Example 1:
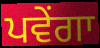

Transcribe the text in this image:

ਪਵੇਂਗਾ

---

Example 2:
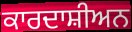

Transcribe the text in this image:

ਕਾਰਦਾਸ਼ੀਅਨ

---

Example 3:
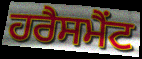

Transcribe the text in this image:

ਹਰੈਸਮੈਂਟ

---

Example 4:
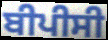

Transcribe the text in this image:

ਬੀਪੀਸੀ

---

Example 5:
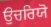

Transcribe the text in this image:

ਉਚਰਿਯੋ